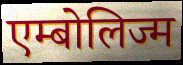
एम्बोलिज्म